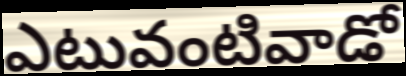
ఎటువంటివాడో